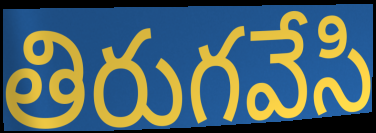
తిరుగవేసి